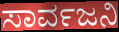
ಸಾರ್ವಜನಿ